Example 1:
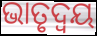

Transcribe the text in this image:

ଭାତୃଦ୍ବୟ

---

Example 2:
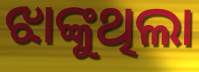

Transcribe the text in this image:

ଝାଙ୍କୁଥିଲା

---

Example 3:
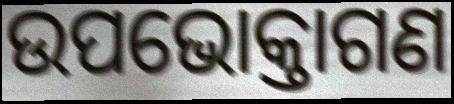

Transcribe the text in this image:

ଉପଭୋକ୍ତାଗଣ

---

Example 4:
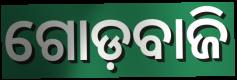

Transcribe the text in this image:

ଗୋଡ଼ବାଜି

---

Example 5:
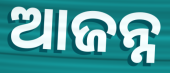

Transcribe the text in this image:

ଆଜନ୍ନ